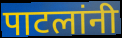
पाटलांनी